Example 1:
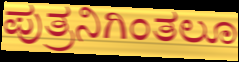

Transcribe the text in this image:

ಪುತ್ರನಿಗಿಂತಲೂ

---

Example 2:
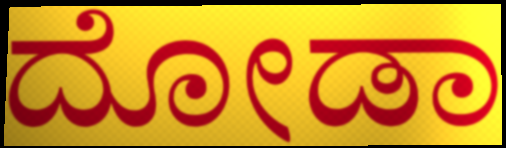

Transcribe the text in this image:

ದೋಡಾ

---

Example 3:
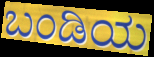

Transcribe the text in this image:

ಬಂಡಿಯ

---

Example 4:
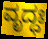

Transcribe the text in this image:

ವೃದ್ಧಃ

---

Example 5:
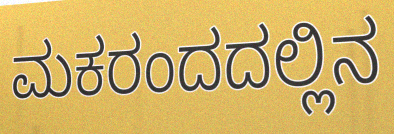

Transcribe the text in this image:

ಮಕರಂದದಲ್ಲಿನ